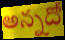
అన్నదో